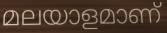
മലയാളമാണ്